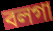
বলগা